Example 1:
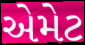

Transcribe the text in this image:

એમેટ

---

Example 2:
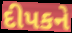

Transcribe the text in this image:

દીપકને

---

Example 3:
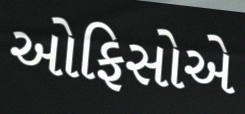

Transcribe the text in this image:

ઓફિસોએ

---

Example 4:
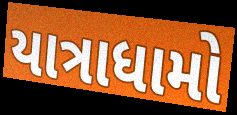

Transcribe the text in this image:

યાત્રાધામો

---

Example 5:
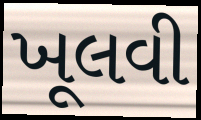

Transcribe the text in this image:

ખૂલવી